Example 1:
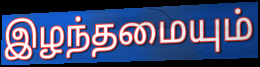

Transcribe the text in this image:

இழந்தமையும்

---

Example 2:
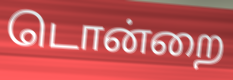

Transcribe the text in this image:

டொன்றை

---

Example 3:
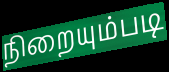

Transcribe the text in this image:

நிறையும்படி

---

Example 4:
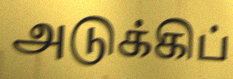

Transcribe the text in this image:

அடுக்கிப்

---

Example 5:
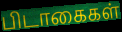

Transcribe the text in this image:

பிடாகைகள்